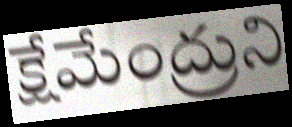
క్షేమేంద్రుని